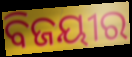
ବିଜୟୀର